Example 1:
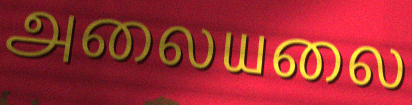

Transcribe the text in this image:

அலையலை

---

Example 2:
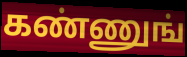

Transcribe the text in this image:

கண்ணுங்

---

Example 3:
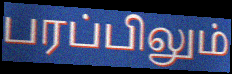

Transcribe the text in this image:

பரப்பிலும்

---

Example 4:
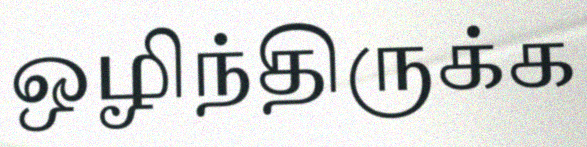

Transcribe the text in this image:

ஒழிந்திருக்க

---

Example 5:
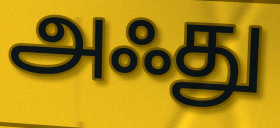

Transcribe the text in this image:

அஃது